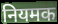
नियमक